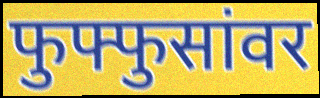
फुफ्फुसांवर